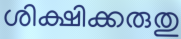
ശിക്ഷിക്കരുതു